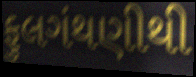
ફુલગંથણીથી